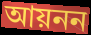
আয়নন